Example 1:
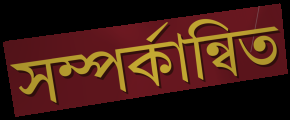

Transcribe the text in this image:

সম্পর্কান্বিত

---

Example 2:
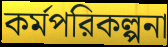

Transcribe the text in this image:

কর্মপরিকল্পনা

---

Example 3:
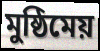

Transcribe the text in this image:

মুষ্ঠিমেয়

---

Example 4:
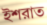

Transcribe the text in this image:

ইশরাত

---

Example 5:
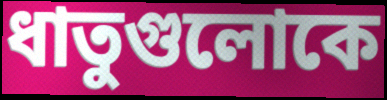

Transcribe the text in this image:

ধাতুগুলোকে